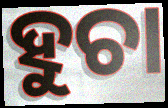
ହୁଚା